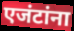
एजंटांना